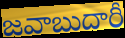
జవాబుదారీ